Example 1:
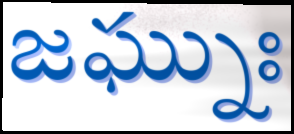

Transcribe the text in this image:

జఘ్నుః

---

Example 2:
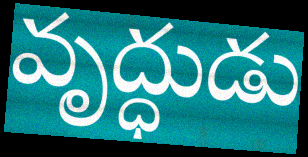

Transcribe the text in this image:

వృద్ధుడు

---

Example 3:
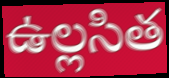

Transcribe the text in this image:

ఉల్లసిత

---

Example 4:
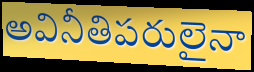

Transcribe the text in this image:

అవినీతిపరులైనా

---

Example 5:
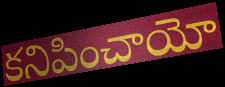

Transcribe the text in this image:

కనిపించాయో